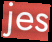
jes